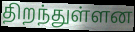
திறந்துள்ளன